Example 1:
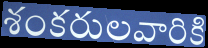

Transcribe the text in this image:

శంకరులవారికి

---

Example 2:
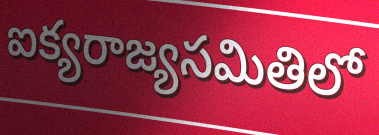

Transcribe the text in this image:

ఐక్యరాజ్యసమితిలో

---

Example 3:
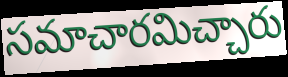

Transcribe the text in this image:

సమాచారమిచ్చారు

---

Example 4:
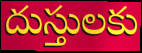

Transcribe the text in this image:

దుస్తులకు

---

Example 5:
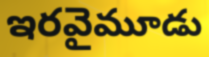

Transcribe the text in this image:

ఇరవైమూడు